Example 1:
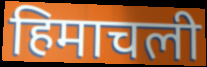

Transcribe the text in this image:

हिमाचली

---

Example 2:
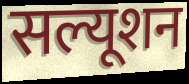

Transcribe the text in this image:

सल्यूशन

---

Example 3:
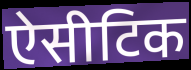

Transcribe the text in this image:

ऐसीटिक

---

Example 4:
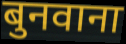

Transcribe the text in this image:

बुनवाना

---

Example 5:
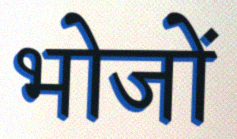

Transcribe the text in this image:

भोजों